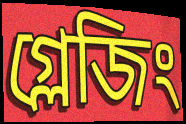
গ্লেজিং